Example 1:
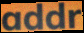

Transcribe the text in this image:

addr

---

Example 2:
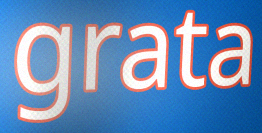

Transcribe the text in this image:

grata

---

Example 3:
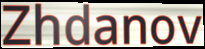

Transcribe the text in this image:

Zhdanov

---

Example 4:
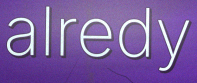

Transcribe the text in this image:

alredy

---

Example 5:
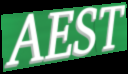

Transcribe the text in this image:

AEST